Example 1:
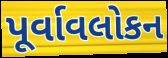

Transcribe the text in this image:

પૂર્વાવલોકન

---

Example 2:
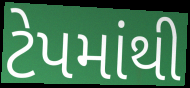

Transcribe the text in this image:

ટેપમાંથી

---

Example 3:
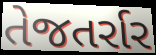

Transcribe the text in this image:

તેજતર્રાર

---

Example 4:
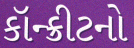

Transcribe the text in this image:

કૉન્ક્રીટનો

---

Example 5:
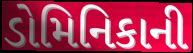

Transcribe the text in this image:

ડોમિનિકાની